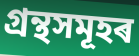
গ্ৰন্থসমূহৰ